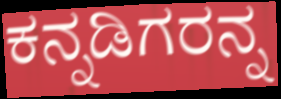
ಕನ್ನಡಿಗರನ್ನ